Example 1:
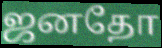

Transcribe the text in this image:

ஜனதோ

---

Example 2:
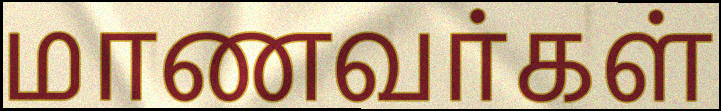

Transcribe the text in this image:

மாணவர்கள்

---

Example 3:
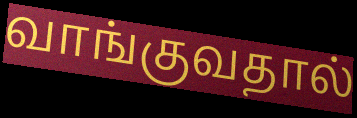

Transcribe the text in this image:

வாங்குவதால்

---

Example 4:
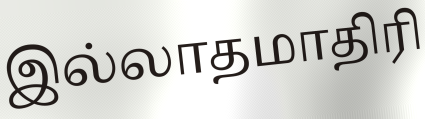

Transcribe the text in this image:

இல்லாதமாதிரி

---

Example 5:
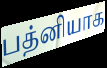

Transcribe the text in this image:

பத்னியாக